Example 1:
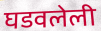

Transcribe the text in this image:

घडवलेली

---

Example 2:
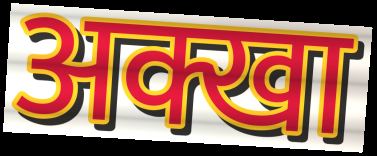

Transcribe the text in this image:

अक्खा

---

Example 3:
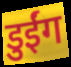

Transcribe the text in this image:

डुईंग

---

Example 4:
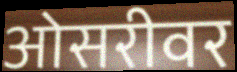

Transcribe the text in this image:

ओसरीवर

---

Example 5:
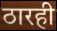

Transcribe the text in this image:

ठारही